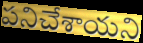
పనిచేశాయని